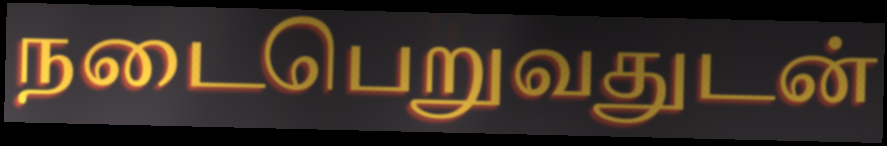
நடைபெறுவதுடன்